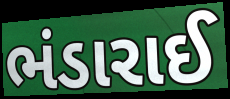
ભંડારાઈ